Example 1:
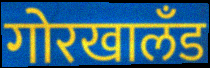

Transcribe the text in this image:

गोरखालॅंड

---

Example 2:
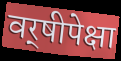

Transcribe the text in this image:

वर्षीपेक्षा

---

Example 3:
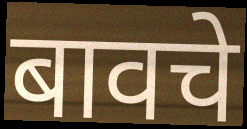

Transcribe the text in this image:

बावचे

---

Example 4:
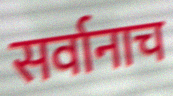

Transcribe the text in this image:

सर्वानाच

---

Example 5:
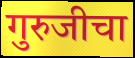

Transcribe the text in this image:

गुरुजीचा